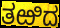
ತಱಿದ